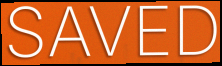
SAVED